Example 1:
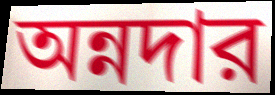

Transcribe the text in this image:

অন্নদার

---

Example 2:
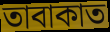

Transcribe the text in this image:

তাবাকাত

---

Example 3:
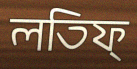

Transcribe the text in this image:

লতিফ্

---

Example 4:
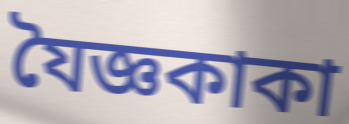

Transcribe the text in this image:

যৈজ্ঞকাকা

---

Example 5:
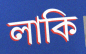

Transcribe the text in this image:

লাকি